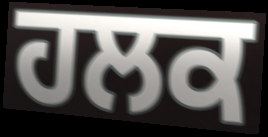
ਹਲਕ